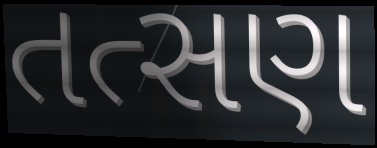
તત્સણ